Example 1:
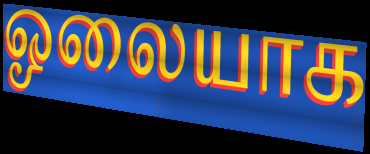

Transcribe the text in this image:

ஓலையாக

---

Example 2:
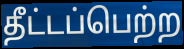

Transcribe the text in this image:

தீட்டப்பெற்ற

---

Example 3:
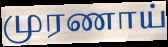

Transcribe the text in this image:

முரணாய்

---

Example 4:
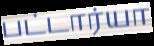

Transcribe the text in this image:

பட்டார்யா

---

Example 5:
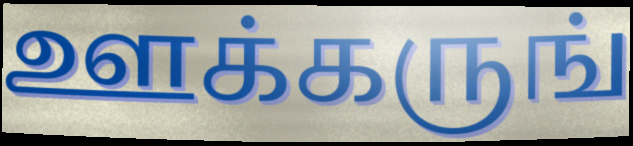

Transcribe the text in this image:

ஊக்கருங்